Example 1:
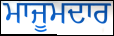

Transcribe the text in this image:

ਮਾਜੂਮਦਾਰ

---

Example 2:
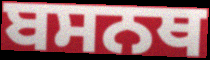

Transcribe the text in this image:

ਬਸਨਥ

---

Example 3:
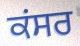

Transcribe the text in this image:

ਕਂਸਰ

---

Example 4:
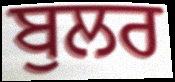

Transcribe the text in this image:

ਬੁਲਰ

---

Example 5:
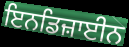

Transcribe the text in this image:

ਇਨਡਿਜ਼ਾਈਨ